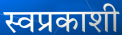
स्वप्रकाशी